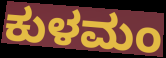
ಕುಳಮಂ